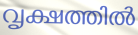
വൃക്ഷത്തിൽ